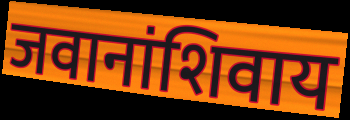
जवानांशिवाय